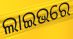
ଲାଇଭରେ